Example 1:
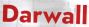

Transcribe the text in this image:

Darwall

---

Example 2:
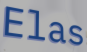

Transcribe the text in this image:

Elas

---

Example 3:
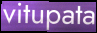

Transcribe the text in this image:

vitupata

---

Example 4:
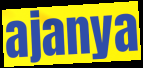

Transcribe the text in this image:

ajanya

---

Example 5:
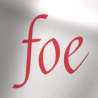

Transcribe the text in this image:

foe